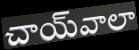
చాయ్‌వాలా